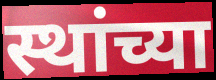
स्थांच्या